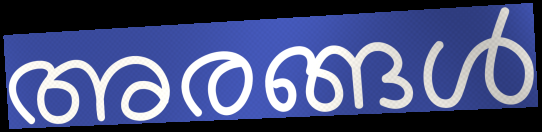
അരങ്ങൾ